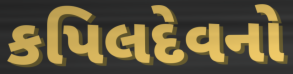
કપિલદેવનો